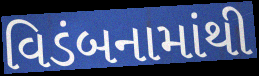
વિડંબનામાંથી